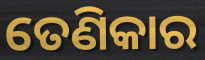
ତେଣିକାର